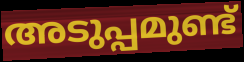
അടുപ്പമുണ്ട്